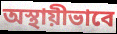
অস্থায়ীভাবে